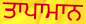
ਤਾਪਾਮਾਨ